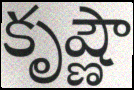
కృష్ణౌ